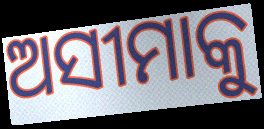
ଅସୀମାକୁ